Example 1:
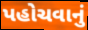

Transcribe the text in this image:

પહોચવાનું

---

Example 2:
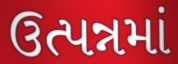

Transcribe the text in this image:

ઉત્પન્નમાં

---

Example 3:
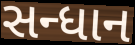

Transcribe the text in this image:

સન્ધાન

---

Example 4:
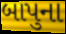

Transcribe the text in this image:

બાપુના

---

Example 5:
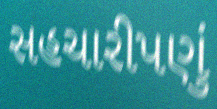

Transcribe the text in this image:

સહચારીપણું